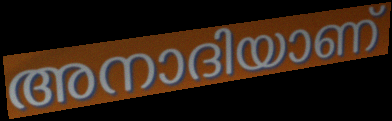
അനാദിയാണ്